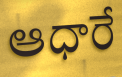
ఆధారే